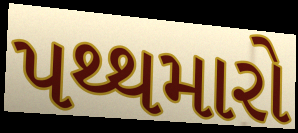
પથ્થમારો